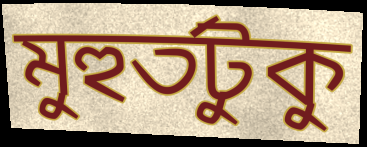
মুহুর্তটুকু